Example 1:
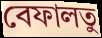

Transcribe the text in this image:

বেফালতু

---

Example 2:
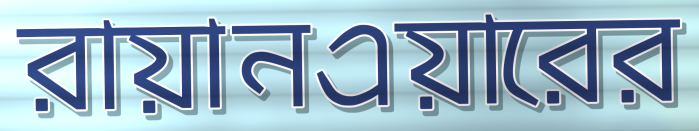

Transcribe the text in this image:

রায়ানএয়ারের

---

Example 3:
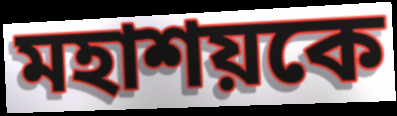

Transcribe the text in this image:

মহাশয়কে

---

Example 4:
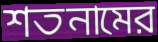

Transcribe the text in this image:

শতনামের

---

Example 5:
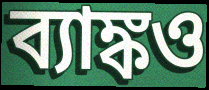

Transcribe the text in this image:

ব্যাঙ্কও